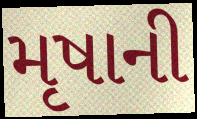
મૃષાની